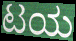
ಟಯ